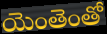
యెంతెంతో